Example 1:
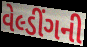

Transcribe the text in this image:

વેલ્ડીંગની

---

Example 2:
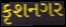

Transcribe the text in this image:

કૃશનગર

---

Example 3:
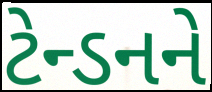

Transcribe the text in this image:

ટેન્ડનને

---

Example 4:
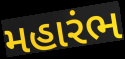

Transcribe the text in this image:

મહારંભ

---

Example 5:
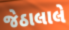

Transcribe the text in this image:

જેઠાલાલે